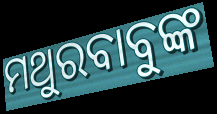
ମଥୁରବାବୁଙ୍କ